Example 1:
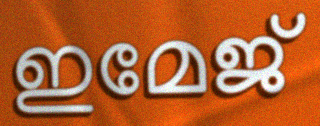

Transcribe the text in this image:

ഇമേജ്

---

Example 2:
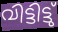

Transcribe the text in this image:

വിട്ടിട്ടു്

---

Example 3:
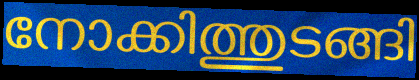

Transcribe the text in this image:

നോക്കിത്തുടങ്ങി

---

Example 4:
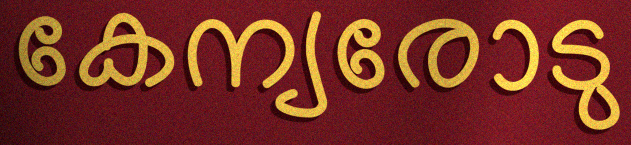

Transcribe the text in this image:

കേന്യരോടു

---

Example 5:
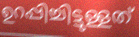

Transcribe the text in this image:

ഉറപ്പിച്ചിട്ടുള്ളത്